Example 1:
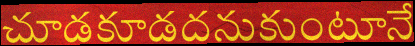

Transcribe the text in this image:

చూడకూడదనుకుంటూనే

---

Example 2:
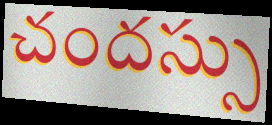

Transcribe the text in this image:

చందస్సు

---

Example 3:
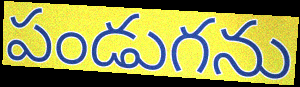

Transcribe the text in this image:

పండుగను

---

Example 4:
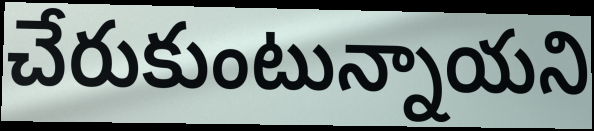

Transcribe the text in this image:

చేరుకుంటున్నాయని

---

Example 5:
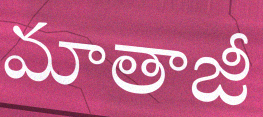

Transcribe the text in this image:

మాతాజీ